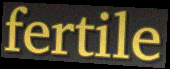
fertile